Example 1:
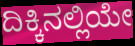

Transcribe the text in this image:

ದಿಕ್ಕಿನಲ್ಲಿಯೇ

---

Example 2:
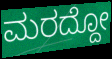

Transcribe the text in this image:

ಮರದ್ದೋ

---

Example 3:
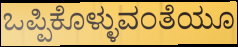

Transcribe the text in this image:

ಒಪ್ಪಿಕೊಳ್ಳುವಂತೆಯೂ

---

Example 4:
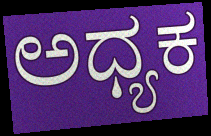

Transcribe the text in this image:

ಅಧ್ಯಕ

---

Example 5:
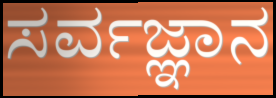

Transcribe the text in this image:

ಸರ್ವಜ್ಞಾನ